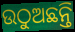
ଉଠୁଅଛନ୍ତି